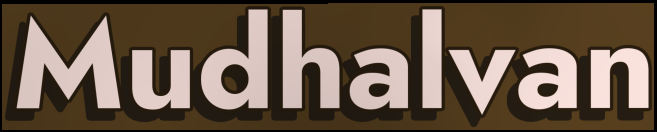
Mudhalvan